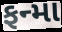
ફન્મા